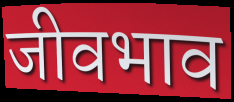
जीवभाव